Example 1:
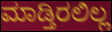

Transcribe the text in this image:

ಮಾಡ್ತಿರಲಿಲ್ಲ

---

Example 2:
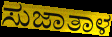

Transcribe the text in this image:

ಸುಜಾತಾಳ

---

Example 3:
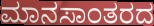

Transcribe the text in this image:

ಮಾನಸಾಂತರದ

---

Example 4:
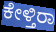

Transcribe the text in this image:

ಕೇಳ್ತಿರಾ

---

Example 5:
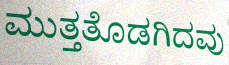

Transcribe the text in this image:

ಮುತ್ತತೊಡಗಿದವು